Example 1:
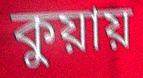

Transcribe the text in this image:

কুয়ায়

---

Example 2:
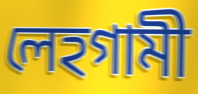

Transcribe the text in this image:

লেহগামী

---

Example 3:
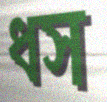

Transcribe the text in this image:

ধস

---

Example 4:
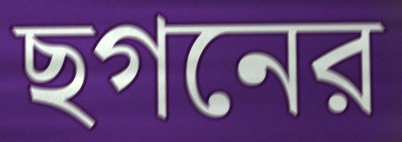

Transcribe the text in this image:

ছগনের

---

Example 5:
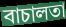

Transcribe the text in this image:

বাচালতা